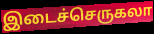
இடைச்செருகலா